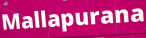
Mallapurana